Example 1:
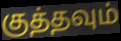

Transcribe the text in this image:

குத்தவும்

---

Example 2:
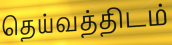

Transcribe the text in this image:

தெய்வத்திடம்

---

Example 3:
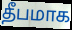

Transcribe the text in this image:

தீபமாக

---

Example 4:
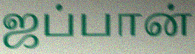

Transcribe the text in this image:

ஜப்பான்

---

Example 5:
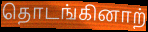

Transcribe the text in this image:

தொடங்கினாற்